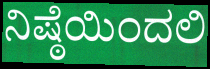
ನಿಷ್ಠೆಯಿಂದಲಿ